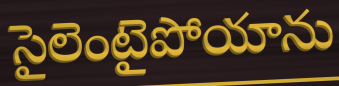
సైలెంటైపోయాను